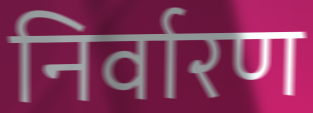
निर्वारण